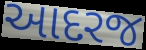
આદરજ